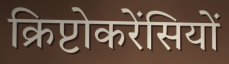
क्रिप्टोकरेंसियों